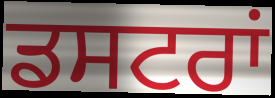
ਡਸਟਰਾਂ